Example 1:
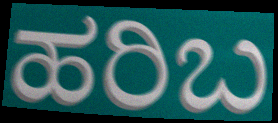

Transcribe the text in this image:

ಹರಿಬ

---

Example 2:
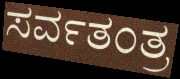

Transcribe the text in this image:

ಸರ್ವತಂತ್ರ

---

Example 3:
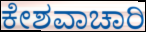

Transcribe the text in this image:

ಕೇಶವಾಚಾರಿ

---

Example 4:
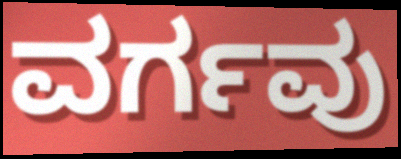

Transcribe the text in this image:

ವರ್ಗವು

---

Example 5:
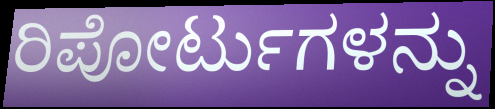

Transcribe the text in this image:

ರಿಪೋರ್ಟುಗಳನ್ನು